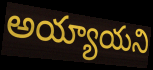
అయ్యాయని